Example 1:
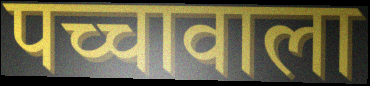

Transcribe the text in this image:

पच्चावाला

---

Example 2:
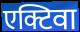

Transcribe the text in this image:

एक्टिवा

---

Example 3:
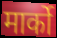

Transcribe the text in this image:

मार्को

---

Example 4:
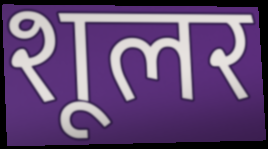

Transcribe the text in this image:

शूलर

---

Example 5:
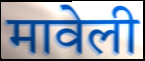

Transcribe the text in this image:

मावेली